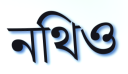
নথিও